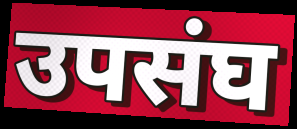
उपसंघ